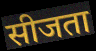
सीजता